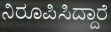
ನಿರೂಪಿಸಿದ್ದಾರೆ